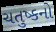
ચતુષ્કનો